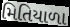
મિતિયાળા